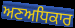
ਅਣਅਧਿਕਾਰ